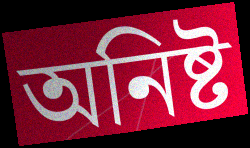
অনিষ্ট